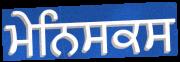
ਮੇਨਿਸਕਸ